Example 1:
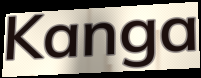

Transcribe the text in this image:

Kanga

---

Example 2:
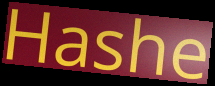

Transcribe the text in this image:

Hashe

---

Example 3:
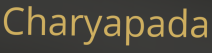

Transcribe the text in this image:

Charyapada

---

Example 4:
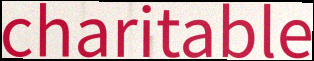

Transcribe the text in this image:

charitable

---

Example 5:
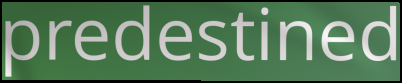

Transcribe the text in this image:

predestined